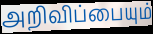
அறிவிப்பையும்